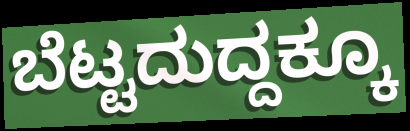
ಬೆಟ್ಟದುದ್ದಕ್ಕೂ